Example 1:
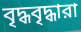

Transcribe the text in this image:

বৃদ্ধবৃদ্ধারা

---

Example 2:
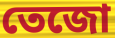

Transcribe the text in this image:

তেজো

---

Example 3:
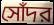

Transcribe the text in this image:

সোঁদর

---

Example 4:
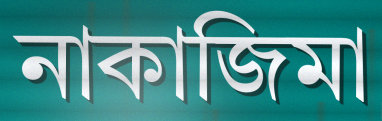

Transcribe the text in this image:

নাকাজিমা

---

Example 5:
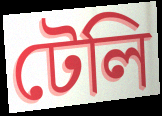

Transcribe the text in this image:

টেলি